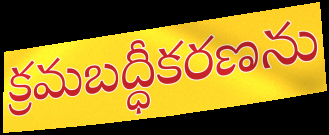
క్రమబద్ధీకరణను